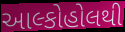
આલ્કોહોલથી